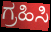
ಗ್ರಹಿಸಿ